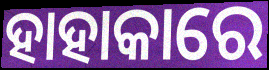
ହାହାକାରେ